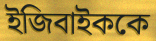
ইজিবাইককে